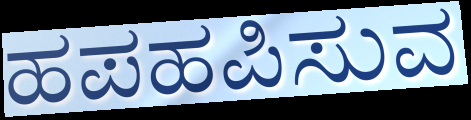
ಹಪಹಪಿಸುವ